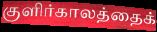
குளிர்காலத்தைக்